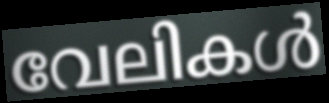
വേലികൾ